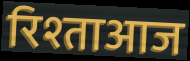
रिश्ताआज